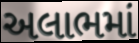
અલાભમાં